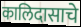
कालिदासाचे